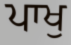
ਪਾਖੁ